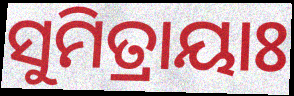
ସୁମିତ୍ରାୟାଃ